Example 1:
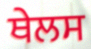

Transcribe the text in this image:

ਥੇਲਸ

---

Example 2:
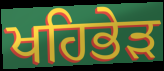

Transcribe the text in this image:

ਖਹਿਭੇੜ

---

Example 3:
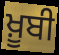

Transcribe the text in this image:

ਖ਼ੂਬੀ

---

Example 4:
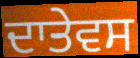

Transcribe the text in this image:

ਦਾਤੇਵਸ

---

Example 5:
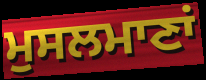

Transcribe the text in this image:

ਮੁਸਲਮਾਣਾਂ